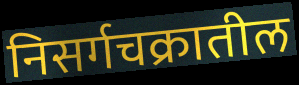
निसर्गचक्रातील